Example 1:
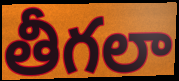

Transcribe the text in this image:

తీగలా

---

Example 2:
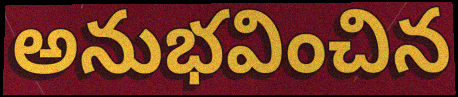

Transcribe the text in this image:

అనుభవించిన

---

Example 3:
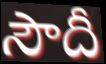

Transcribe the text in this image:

సౌదీ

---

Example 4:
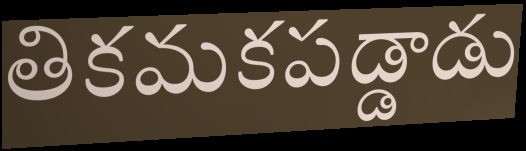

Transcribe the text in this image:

తికమకపడ్డాడు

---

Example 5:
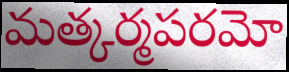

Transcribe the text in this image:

మత్కర్మపరమో